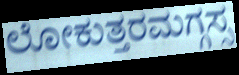
ಲೋಕುತ್ತರಮಗ್ಗಸ್ಸ